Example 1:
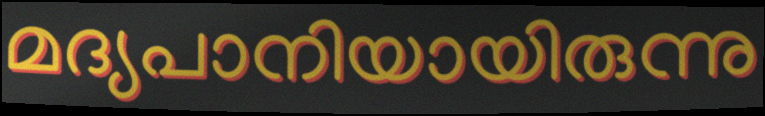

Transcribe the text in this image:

മദ്യപാനിയായിരുന്നു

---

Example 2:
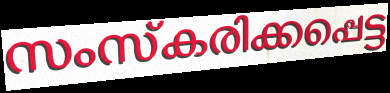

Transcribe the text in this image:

സംസ്‌കരിക്കപ്പെട്ട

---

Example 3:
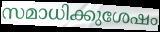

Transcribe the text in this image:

സമാധിക്കുശേഷം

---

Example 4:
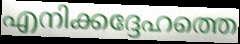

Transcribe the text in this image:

എനിക്കദ്ദേഹത്തെ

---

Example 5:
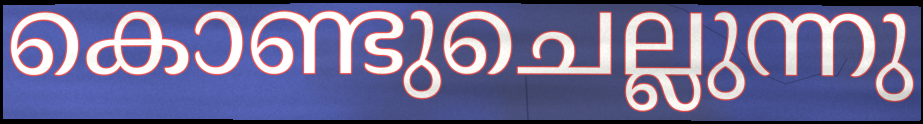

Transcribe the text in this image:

കൊണ്ടുചെല്ലുന്നു